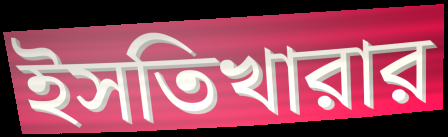
ইসতিখারার